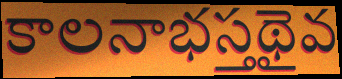
కాలనాభస్తథైవ